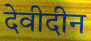
देवीदीन